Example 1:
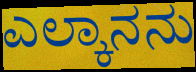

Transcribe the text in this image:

ಎಲ್ಕಾನನು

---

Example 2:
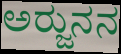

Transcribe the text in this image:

ಅರ್‍ಜುನನ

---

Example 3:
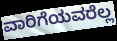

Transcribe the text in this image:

ವಾರಿಗೆಯವರೆಲ್ಲ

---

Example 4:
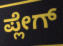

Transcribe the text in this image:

ಪ್ಲೇಗ್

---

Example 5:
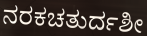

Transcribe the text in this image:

ನರಕಚತುರ್ದಶೀ